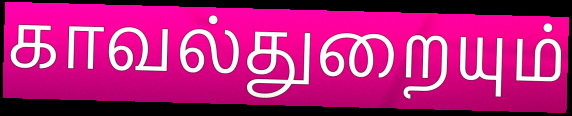
காவல்துறையும்